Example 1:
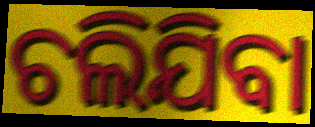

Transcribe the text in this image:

ଚଲିଯିବା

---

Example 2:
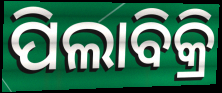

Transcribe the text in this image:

ପିଲାବିକ୍ରି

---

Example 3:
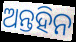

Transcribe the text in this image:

ଅନ୍ତହିନ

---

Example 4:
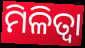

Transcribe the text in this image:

ମିଳିତ୍ଵା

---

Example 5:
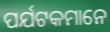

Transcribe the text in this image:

ପର୍ଯଟକମାନେ